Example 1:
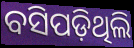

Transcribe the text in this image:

ବସିପଡ଼ିଥିଲି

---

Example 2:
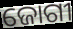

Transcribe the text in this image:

ଜୋଗୀ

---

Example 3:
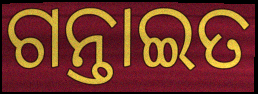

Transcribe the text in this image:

ଗନ୍ତାଇତ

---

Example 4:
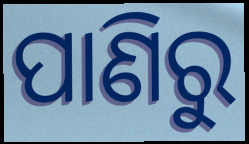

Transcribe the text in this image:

ପାଣିରୁ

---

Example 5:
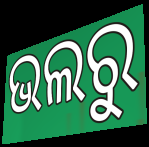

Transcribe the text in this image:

ଭଲରୁ